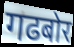
गढबोर